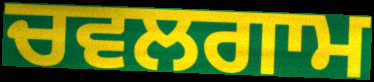
ਚਵਲਗਾਮ